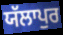
ਯੱਲਾਪੁਰ